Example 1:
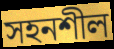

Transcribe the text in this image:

সহনশীল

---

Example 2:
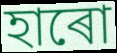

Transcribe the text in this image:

হাৰো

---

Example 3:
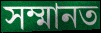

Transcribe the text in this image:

সম্মানত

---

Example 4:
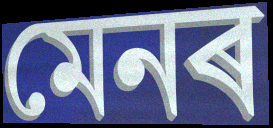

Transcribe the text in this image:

মেনৰ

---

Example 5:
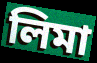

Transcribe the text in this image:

লিমা